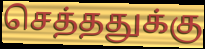
செத்ததுக்கு